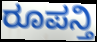
ರೂಪನ್ತಿ